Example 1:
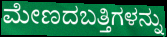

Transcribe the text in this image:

ಮೇಣದಬತ್ತಿಗಳನ್ನು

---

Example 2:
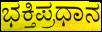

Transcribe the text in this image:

ಭಕ್ತಿಪ್ರಧಾನ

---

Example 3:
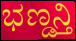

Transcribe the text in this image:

ಭಣ್ಡನ್ತಿ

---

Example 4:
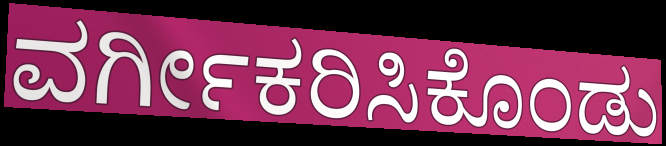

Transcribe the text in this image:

ವರ್ಗೀಕರಿಸಿಕೊಂಡು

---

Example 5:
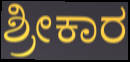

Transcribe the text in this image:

ಶ್ರೀಕಾರ